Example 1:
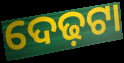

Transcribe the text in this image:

ଦେଢ଼ଟା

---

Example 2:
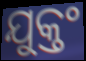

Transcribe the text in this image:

ଯୁକ୍ତଂ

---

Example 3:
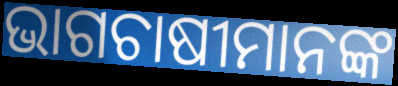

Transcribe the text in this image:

ଭାଗଚାଷୀମାନଙ୍କ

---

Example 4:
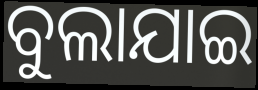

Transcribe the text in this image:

ବୁଲାଯାଇ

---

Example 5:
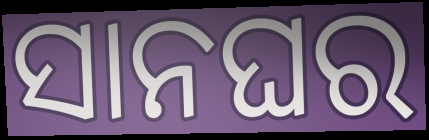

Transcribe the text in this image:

ସାନଘର